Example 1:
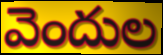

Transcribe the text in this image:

వెందుల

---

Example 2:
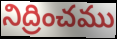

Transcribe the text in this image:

నిద్రించము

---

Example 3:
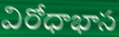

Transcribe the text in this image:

విరోధాభాస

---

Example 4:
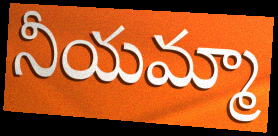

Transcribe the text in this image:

నీయమ్మా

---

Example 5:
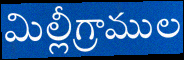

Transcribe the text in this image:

మిల్లీగ్రాముల